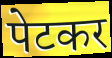
पेटकर